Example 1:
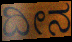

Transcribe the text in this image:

ದೀನ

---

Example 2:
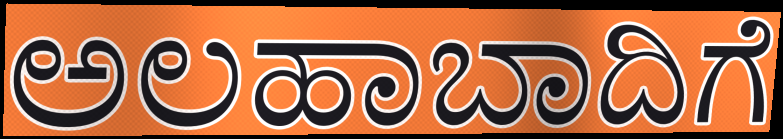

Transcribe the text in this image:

ಅಲಹಾಬಾದಿಗೆ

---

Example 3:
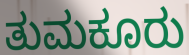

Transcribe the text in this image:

ತುಮಕೂರು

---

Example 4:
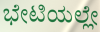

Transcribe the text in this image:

ಭೇಟಿಯಲ್ಲೇ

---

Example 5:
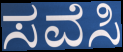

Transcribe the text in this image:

ಸವೆಸಿ